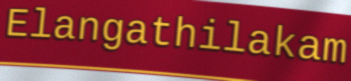
Elangathilakam